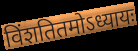
विंशतितमोऽध्यायः